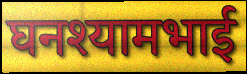
घनश्यामभाई